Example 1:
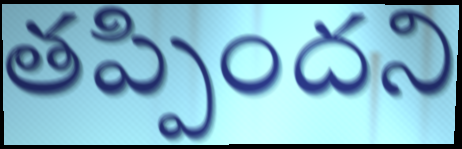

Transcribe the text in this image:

తప్పిందని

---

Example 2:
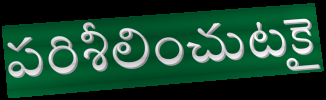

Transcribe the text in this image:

పరిశీలించుటకై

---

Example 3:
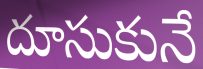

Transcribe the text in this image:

దూసుకునే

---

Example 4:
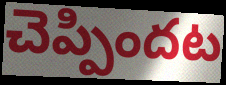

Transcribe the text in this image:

చెప్పిందట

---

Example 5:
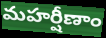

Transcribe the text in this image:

మహర్షీణాం